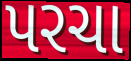
પરચા